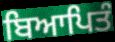
ਬਿਆਪਿਤੰ